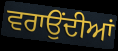
ਵਰਾਉਂਦੀਆਂ